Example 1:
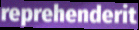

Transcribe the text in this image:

reprehenderit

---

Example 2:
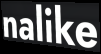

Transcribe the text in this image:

nalike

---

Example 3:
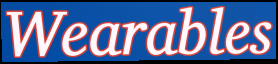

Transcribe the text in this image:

Wearables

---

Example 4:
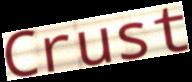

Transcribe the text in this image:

Crust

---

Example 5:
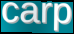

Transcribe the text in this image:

carp